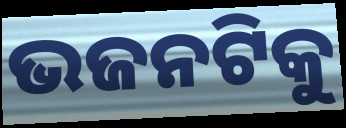
ଭଜନଟିକୁ